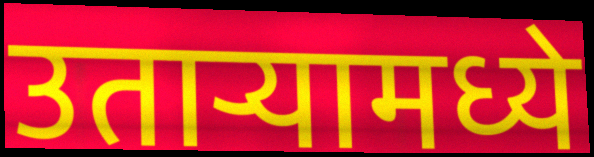
उतार्‍यामध्ये